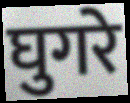
घुगरे